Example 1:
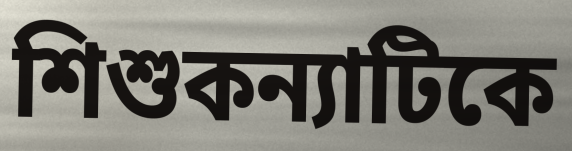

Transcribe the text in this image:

শিশুকন্যাটিকে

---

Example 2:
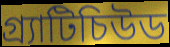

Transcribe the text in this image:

গ্র্যাটিচিউড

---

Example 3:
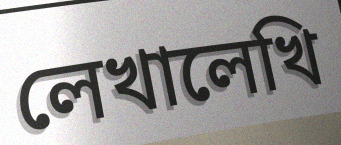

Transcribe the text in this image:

লেখালেখি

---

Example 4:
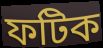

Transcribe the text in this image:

ফটিক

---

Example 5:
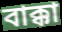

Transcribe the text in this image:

বাক্কা